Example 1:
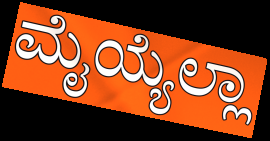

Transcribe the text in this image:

ಮೈಯ್ಯೆಲ್ಲಾ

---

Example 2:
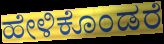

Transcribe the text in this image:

ಹೇಳಿಕೊಂಡರೆ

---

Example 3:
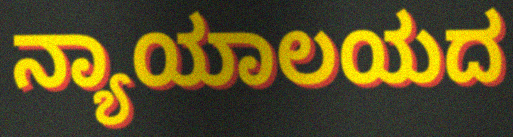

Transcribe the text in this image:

ನ್ಯಾಯಾಲಯದ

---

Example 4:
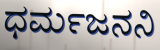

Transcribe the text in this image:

ಧರ್ಮಜನನಿ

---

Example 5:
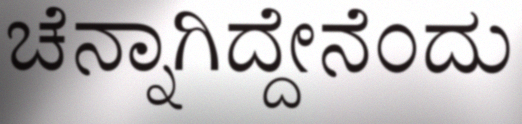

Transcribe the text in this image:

ಚೆನ್ನಾಗಿದ್ದೇನೆಂದು